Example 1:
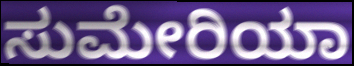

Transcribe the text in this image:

ಸುಮೇರಿಯಾ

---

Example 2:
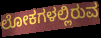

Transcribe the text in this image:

ಲೋಕಗಳಲ್ಲಿರುವ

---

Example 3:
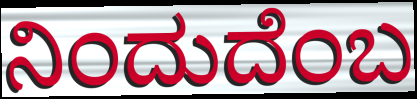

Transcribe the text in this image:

ನಿಂದುದೆಂಬ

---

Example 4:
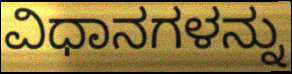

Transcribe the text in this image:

ವಿಧಾನಗಳನ್ನು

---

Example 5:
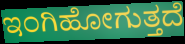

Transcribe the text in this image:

ಇಂಗಿಹೋಗುತ್ತದೆ